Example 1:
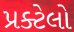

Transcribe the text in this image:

પ્રક્ટેલો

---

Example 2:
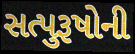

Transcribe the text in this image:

સત્પુરૂષોની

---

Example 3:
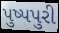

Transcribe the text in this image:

પુષ્પપુરી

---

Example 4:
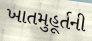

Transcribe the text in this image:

ખાતમુહૂર્તની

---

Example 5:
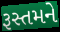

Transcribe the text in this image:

રૂસ્તમને